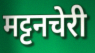
मट्टनचेरी